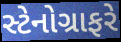
સ્ટેનોગ્રાફરે